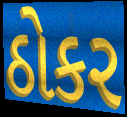
ઠોકર